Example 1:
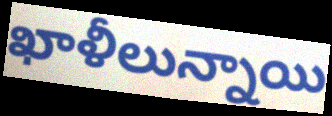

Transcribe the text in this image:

ఖాళీలున్నాయి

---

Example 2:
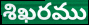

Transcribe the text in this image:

శిఖరము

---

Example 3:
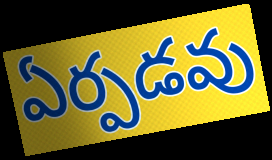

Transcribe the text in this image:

ఏర్పడవు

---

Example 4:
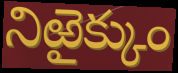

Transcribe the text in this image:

నిఱైక్కుం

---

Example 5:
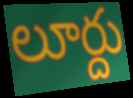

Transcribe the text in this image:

లూర్దు